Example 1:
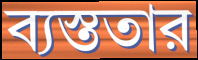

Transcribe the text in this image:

ব্যস্ততার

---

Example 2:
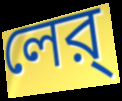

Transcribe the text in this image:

লের্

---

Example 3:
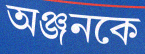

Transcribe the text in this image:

অঞ্জনকে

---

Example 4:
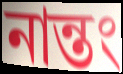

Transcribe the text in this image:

নান্তং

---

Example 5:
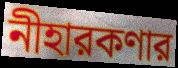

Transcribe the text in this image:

নীহারকণার